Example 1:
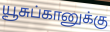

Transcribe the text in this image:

யூசுப்கானுக்கு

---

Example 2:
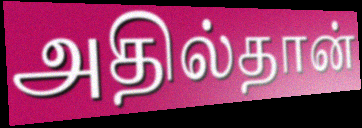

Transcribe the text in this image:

அதில்தான்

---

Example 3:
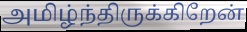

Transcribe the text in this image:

அமிழ்ந்திருக்கிறேன்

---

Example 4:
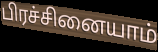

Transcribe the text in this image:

பிரச்சினையாம்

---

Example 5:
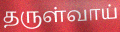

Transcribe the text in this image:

தருள்வாய்